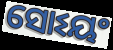
ସୋଽୟଂ